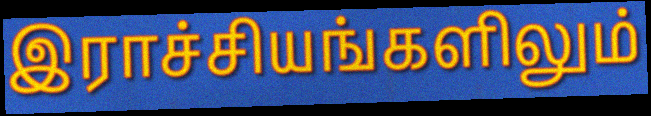
இராச்சியங்களிலும்